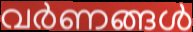
വർണങ്ങൾ